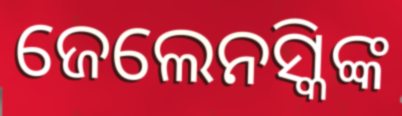
ଜେଲେନସ୍କିଙ୍କ